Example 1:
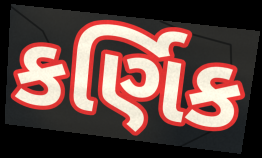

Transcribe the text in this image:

કર્ણિક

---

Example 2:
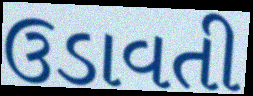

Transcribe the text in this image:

ઉડાવતી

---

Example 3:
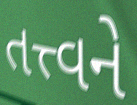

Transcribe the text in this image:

તત્ત્વને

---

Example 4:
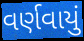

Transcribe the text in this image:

વર્ણવાયું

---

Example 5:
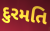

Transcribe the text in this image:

દુરમતિ